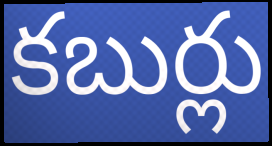
కబుర్లు